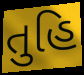
તુહિ